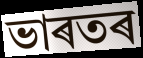
ভাৰতৰ